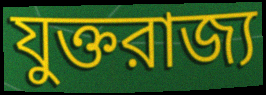
যুক্তরাজ্য